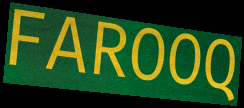
FAROOQ